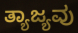
ತ್ಯಾಜ್ಯವು